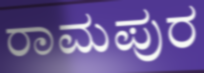
ರಾಮಪುರ